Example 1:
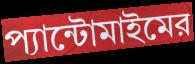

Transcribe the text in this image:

প্যান্টোমাইমের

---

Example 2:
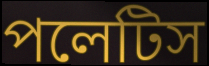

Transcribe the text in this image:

পলেটিস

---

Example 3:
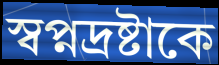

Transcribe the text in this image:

স্বপ্নদ্রষ্টাকে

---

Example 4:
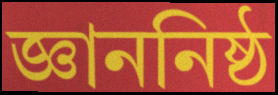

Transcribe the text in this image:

জ্ঞাননিষ্ঠ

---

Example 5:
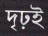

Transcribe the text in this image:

দৃঢ়ই